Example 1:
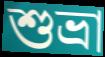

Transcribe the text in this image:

শুভ্রা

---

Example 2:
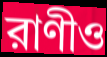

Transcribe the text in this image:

রাণীও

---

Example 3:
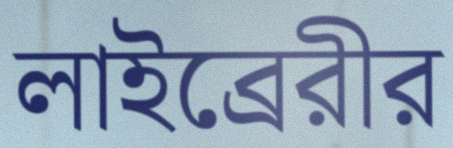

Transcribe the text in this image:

লাইব্রেরীর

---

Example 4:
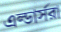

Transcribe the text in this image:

এল্ডার্সরা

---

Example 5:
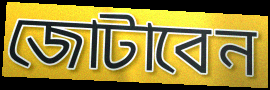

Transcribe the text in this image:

জোটাবেন